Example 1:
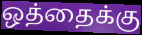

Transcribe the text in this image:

ஒத்தைக்கு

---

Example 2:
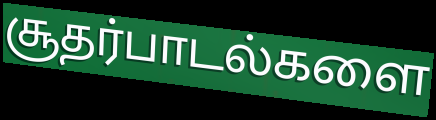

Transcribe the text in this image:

சூதர்பாடல்களை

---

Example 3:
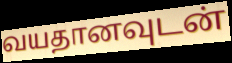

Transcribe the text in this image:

வயதானவுடன்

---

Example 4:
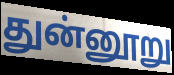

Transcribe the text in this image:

துன்னூறு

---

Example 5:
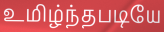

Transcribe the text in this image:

உமிழ்ந்தபடியே